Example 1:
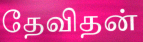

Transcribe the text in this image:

தேவிதன்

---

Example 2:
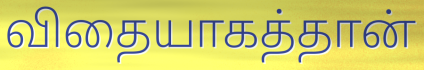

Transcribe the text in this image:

விதையாகத்தான்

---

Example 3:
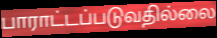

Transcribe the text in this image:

பாராட்டப்படுவதில்லை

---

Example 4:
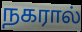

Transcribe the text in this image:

நகரால்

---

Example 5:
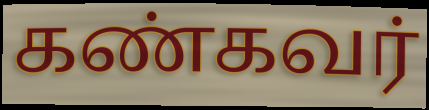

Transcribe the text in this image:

கண்கவர்